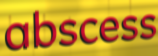
abscess